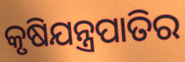
କୃଷିଯନ୍ତ୍ରପାତିର